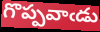
గొప్పవాఁడు